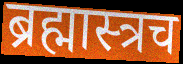
ब्रह्मास्त्रच